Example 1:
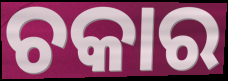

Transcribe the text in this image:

ଚକାର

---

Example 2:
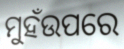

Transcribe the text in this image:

ମୁହଁଉପରେ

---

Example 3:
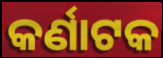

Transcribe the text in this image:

କର୍ଣାଟକ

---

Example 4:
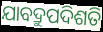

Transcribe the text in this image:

ଯାବଦ୍ରୁପଦିଶତି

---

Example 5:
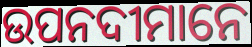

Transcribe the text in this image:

ଉପନଦୀମାନେ